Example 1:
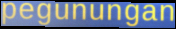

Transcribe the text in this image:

pegunungan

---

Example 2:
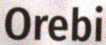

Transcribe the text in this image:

Orebi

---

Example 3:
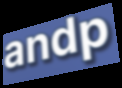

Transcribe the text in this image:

andp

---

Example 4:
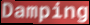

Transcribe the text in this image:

Damping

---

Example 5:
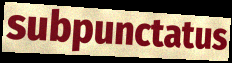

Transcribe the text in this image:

subpunctatus